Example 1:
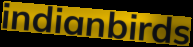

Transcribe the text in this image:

indianbirds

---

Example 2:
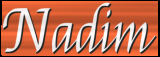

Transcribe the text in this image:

Nadim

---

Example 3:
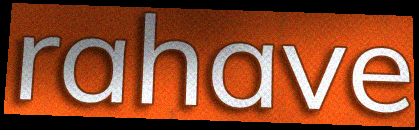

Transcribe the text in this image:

rahave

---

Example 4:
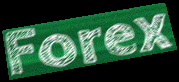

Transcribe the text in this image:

Forex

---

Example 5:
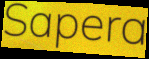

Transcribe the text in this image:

Sapera